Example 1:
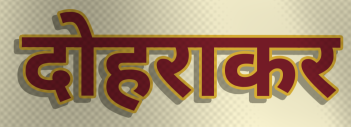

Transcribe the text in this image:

दोहराकर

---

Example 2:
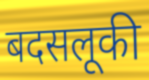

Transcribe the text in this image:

बदसलूकी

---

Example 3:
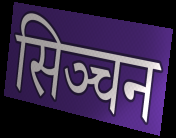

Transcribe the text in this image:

सिञ्चन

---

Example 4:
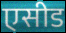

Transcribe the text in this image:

एसीड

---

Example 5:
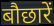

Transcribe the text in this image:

बौछारें